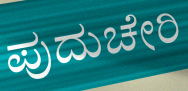
ಪುದುಚೇರಿ